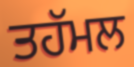
ਤਹੱਮਲ